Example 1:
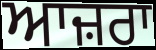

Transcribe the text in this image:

ਆਜ਼ਰਾ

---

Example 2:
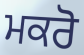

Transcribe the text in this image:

ਮਕਰੋ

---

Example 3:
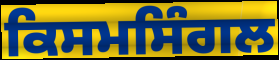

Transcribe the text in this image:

ਕਿਸਮਸਿੰਗਲ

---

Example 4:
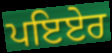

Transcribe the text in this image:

ਪਇਏਰ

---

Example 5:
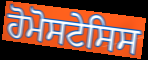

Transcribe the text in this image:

ਹੋਮੋਸਟੇਸਿਸ